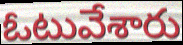
ఓటువేశారు